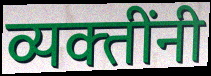
व्यक्‍तींनी